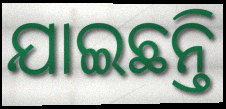
ଯାଇଛନ୍ତି